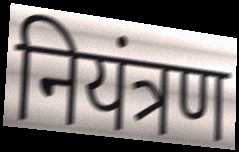
नियंत्रण